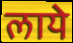
लाये